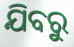
ଯିବରୁ